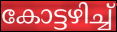
കോട്ടഴിച്ച്